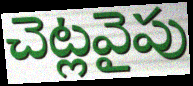
చెట్లవైపు